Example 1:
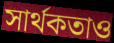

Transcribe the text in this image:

সার্থকতাও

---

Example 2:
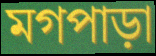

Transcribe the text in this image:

মগপাড়া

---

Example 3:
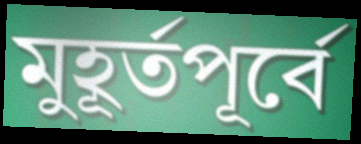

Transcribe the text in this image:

মুহূর্তপূর্বে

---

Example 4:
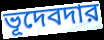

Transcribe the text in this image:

ভূদেবদার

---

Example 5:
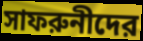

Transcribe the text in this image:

সাফরুনীদের